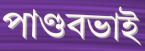
পাণ্ডবভাই